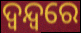
ଦ୍ୱନ୍ଦ୍ବରେ